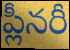
ప్లీనరీ